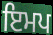
ਇਮਪ